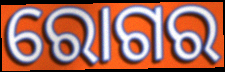
ରୋଗର